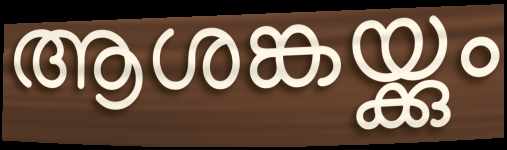
ആശങ്കയ്ക്കും